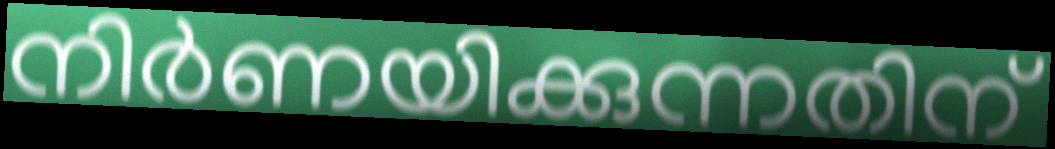
നിർണയിക്കുന്നതിന്